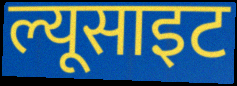
ल्यूसाइट